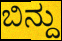
ಬಿನ್ದು